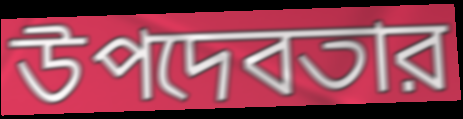
উপদেবতার